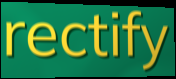
rectify